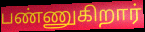
பண்ணுகிறார்